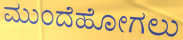
ಮುಂದೆಹೋಗಲು